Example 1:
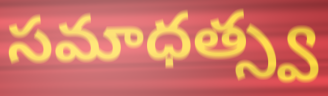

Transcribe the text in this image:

సమాధత్స్వ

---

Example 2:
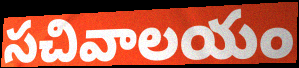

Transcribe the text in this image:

సచివాలయం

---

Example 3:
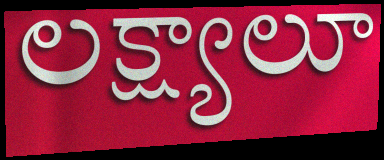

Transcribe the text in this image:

లక్ష్యాలూ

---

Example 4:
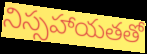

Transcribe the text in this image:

నిస్సహాయతతో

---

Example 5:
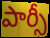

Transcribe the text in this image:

పార్సీ